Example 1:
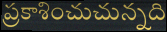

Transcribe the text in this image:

ప్రకాశించుచున్నది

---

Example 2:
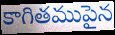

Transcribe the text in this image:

కాగితముపైన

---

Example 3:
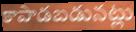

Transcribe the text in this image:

కాపాడబడునట్లు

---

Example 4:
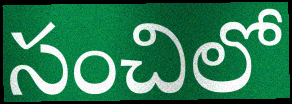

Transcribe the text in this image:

సంచిలో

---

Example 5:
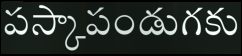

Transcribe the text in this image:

పస్కాపండుగకు